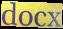
docx